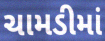
ચામડીમાં